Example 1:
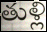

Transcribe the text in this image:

తుళ్లి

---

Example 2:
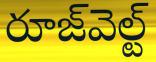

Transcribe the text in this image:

రూజ్‌వెల్ట్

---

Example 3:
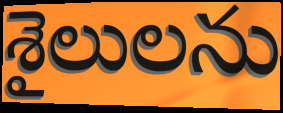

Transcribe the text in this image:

శైలులను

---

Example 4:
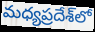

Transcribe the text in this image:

మధ్యప్రదేశ్‌లో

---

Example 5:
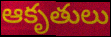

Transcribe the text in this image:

ఆకృతులు